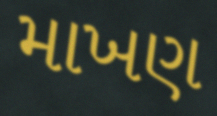
માખણ